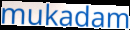
mukadam